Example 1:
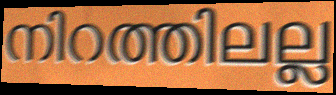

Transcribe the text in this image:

നിറത്തിലല്ല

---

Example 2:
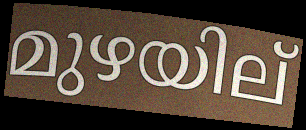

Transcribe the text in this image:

മുഴയില്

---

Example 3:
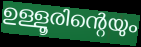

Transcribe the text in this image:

ഉള്ളൂരിന്റെയും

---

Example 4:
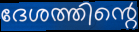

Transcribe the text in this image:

ദേശത്തിന്റെ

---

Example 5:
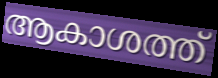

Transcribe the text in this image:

ആകാശത്ത്